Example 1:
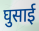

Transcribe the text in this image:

घुसाई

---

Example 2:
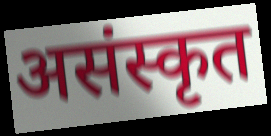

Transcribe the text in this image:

असंस्कृत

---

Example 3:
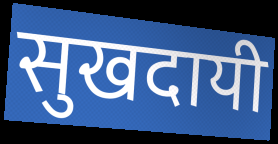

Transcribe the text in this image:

सुखदायी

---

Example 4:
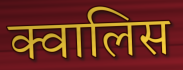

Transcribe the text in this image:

क्वालिस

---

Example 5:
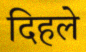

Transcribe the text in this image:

दिहले